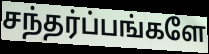
சந்தர்ப்பங்களே